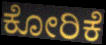
ಕೋರಿಕೆ